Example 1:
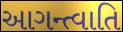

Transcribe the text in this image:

આગન્ત્વાતિ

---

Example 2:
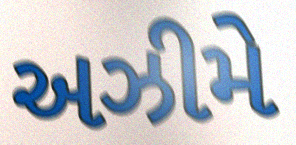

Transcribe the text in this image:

અઝીમે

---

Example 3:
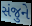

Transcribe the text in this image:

સંજુને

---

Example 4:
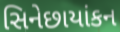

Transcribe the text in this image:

સિનેછાયાંકન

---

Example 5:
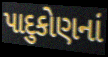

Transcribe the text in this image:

પાદુકોણનાં